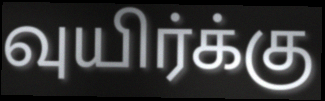
வுயிர்க்கு